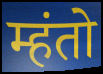
म्हंतो